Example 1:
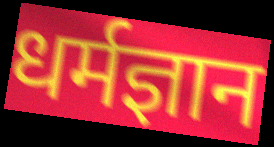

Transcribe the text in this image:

धर्मज्ञान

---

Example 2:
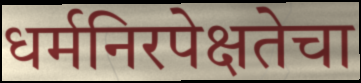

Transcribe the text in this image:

धर्मनिरपेक्षतेचा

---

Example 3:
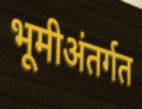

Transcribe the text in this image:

भूमीअंतर्गत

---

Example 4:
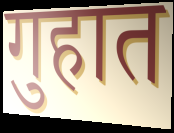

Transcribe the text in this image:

गुहात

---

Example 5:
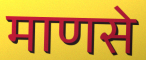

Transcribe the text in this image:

माणसे